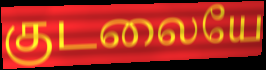
குடலையே